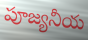
పూజ్యనీయ